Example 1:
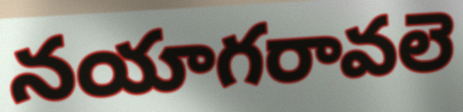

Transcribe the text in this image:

నయాగరావలె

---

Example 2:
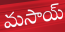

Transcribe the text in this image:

మసాయ్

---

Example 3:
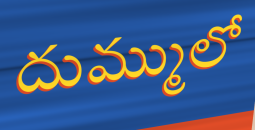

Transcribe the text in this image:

దుమ్ములో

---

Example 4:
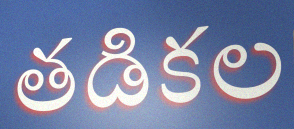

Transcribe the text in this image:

తడికల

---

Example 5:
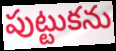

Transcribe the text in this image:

పుట్టుకను